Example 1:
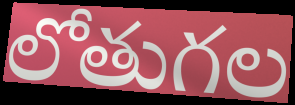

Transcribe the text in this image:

లోతుగల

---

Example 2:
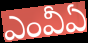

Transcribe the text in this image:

ఎంవీఏ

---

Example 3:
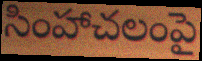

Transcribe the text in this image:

సింహాచలంపై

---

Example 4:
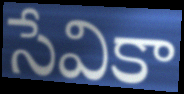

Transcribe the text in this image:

సేవికా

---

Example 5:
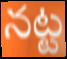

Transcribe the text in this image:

నట్ట